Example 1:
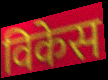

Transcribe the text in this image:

विकेस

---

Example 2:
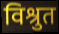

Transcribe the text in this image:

विश्रुत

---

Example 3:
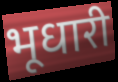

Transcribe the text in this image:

भूधारी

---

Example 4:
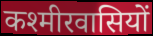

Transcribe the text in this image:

कश्मीरवासियों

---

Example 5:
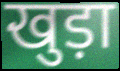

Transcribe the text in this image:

खुड़ा